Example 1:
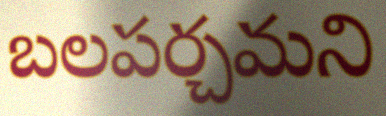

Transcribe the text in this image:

బలపర్చమని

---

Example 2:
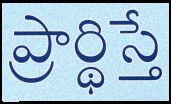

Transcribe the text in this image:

ప్రార్థిస్తే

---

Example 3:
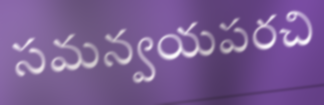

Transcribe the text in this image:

సమన్వయపరచి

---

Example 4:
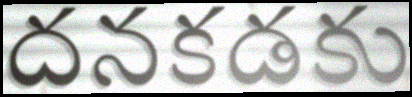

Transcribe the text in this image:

దనకడకు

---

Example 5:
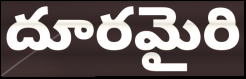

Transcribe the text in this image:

దూరమైరి